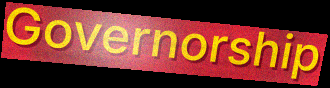
Governorship